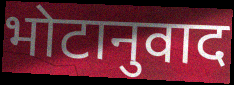
भोटानुवाद